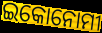
ଇକୋନୋମୀ